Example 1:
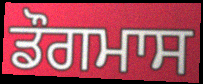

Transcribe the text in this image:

ਡੌਗਮਾਸ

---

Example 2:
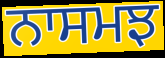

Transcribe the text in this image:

ਨਾਸਮਝ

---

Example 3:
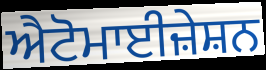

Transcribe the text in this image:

ਐਟੋਮਾਈਜ਼ੇਸ਼ਨ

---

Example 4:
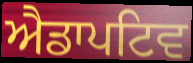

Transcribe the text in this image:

ਐਡਾਪਟਿਵ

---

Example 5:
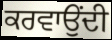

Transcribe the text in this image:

ਕਰਵਾਉਂਦੀ